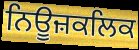
ਨਿਊਜ਼ਕਲਿਕ